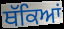
ਥੱਕਿਆਂ